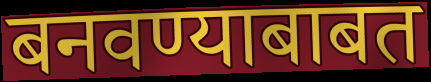
बनवण्याबाबत